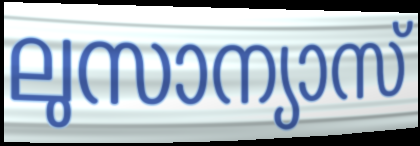
ലുസാന്യാസ്